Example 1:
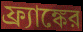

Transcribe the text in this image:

ফ্র্যাঙ্কের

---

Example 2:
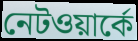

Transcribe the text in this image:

নেটওয়ার্কে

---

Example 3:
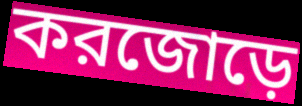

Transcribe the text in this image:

করজোড়ে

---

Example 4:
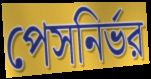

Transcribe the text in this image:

পেসনির্ভর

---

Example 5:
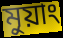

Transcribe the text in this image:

মুয়াং